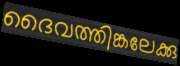
ദൈവത്തിങ്കലേക്കു